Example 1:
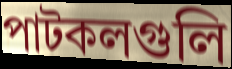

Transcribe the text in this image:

পাটকলগুলি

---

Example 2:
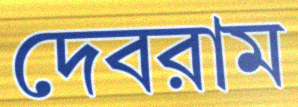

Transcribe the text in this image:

দেবরাম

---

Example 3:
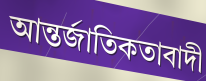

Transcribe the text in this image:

আন্তর্জাতিকতাবাদী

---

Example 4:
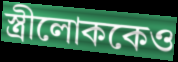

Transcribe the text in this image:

স্ত্রীলোককেও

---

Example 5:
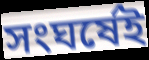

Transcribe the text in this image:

সংঘর্ষেই